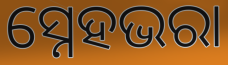
ସ୍ନେହଭରା